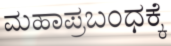
ಮಹಾಪ್ರಬಂಧಕ್ಕೆ